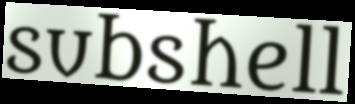
subshell